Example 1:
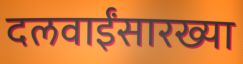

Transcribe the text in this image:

दलवाईंसारख्या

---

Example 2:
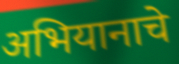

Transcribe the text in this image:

अभियानाचे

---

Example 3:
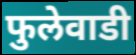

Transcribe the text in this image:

फुलेवाडी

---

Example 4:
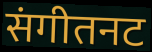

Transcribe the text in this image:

संगीतनट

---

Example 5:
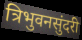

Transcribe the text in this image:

त्रिभुवनसुंदरी